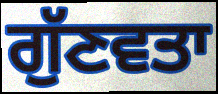
ਗੁੱਣਵਤਾ